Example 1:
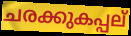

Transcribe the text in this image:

ചരക്കുകപ്പല്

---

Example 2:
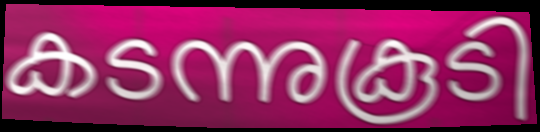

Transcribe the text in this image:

കടന്നുകൂടി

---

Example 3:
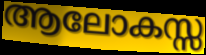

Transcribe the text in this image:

ആലോകസ്സ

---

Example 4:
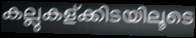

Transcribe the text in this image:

കല്ലുകള്ക്കിടയിലൂടെ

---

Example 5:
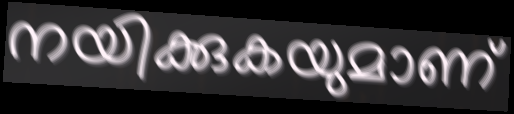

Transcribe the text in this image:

നയിക്കുകയുമാണ്